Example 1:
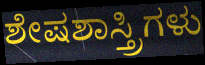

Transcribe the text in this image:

ಶೇಷಶಾಸ್ತ್ರಿಗಳು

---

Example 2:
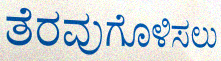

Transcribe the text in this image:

ತೆರವುಗೊಳಿಸಲು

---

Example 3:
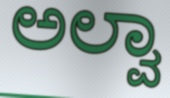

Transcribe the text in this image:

ಅಲ್ವಾ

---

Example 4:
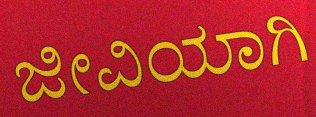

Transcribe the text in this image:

ಜೀವಿಯಾಗಿ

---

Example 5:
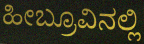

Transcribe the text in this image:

ಹೀಬ್ರೂವಿನಲ್ಲಿ